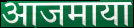
आजमाया